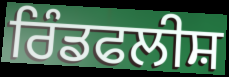
ਰਿੰਡਫਲੀਸ਼